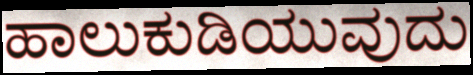
ಹಾಲುಕುಡಿಯುವುದು